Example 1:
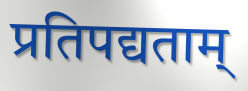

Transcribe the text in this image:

प्रतिपद्यताम्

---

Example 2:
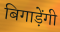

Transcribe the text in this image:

बिगाड़ेंगी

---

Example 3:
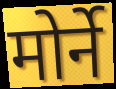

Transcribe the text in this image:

मोर्ने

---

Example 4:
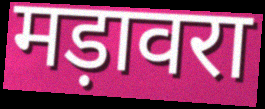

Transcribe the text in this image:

मड़ावरा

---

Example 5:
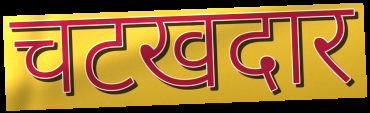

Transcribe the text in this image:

चटखदार